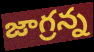
జాగ్రన్న